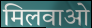
मिलवाओ